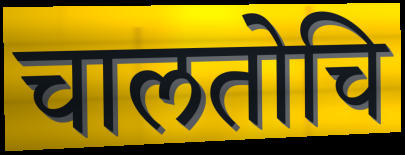
चालतोचि